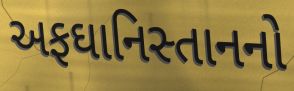
અફઘાનિસ્તાનનો